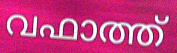
വഫാത്ത്